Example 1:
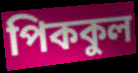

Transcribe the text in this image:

পিককুল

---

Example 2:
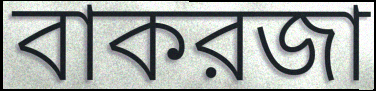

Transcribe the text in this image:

বাকরজা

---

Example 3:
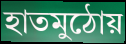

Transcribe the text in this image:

হাতমুঠোয়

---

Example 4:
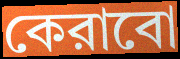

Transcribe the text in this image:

কেরাবো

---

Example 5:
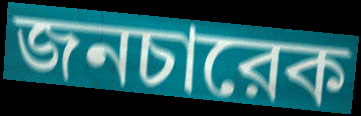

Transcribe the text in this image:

জনচারেক